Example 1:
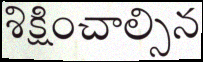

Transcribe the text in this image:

శిక్షించాల్సిన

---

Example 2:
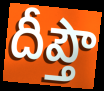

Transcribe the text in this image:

దీప్తౌ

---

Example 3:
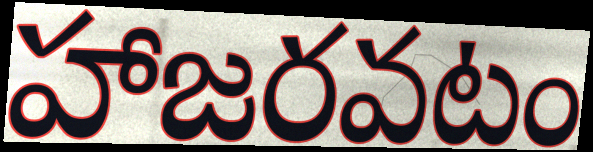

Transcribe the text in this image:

హాజరవటం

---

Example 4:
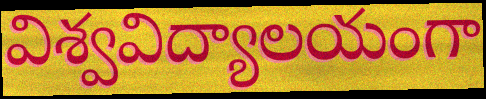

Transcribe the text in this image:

విశ్వవిద్యాలయంగా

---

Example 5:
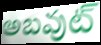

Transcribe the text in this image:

అబవుట్